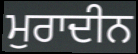
ਮੁਰਾਦੀਨ